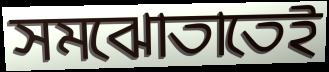
সমঝোতাতেই